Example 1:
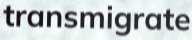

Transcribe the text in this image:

transmigrate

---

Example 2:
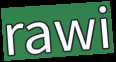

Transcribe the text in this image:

rawi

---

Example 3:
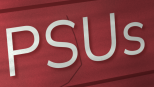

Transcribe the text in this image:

PSUs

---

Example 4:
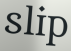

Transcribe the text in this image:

slip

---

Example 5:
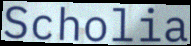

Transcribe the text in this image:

Scholia